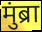
मुंब्रा